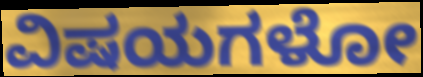
ವಿಷಯಗಳೋ